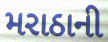
મરાઠાની